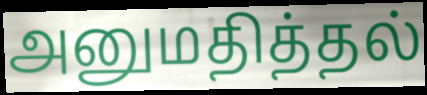
அனுமதித்தல்